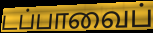
டப்பாவைப்